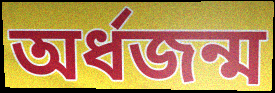
অর্ধজন্ম